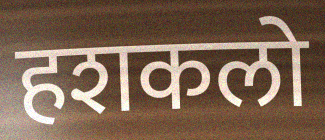
हशकलो